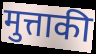
मुत्ताकी